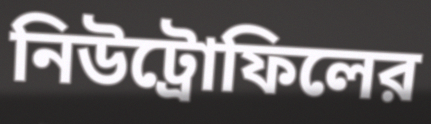
নিউট্রোফিলের